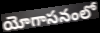
యోగాసనంలో